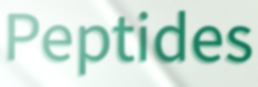
Peptides